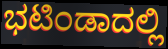
ಭಟಿಂಡಾದಲ್ಲಿ